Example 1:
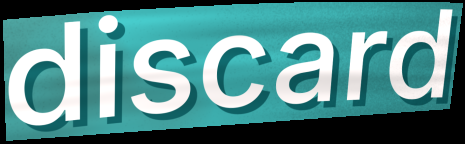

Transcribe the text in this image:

discard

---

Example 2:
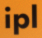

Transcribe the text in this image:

ipl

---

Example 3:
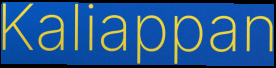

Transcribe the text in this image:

Kaliappan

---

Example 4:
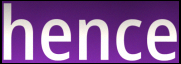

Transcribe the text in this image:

hence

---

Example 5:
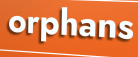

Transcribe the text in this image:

orphans